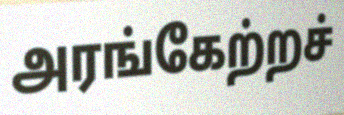
அரங்கேற்றச்